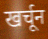
खर्चून